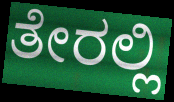
ತೇರಲ್ಲಿ